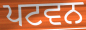
ਪਟਵਨ